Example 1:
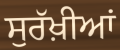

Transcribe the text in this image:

ਸੁਰੱਖ਼ੀਆਂ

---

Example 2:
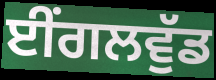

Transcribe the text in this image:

ਈਂਗਲਵੁੱਡ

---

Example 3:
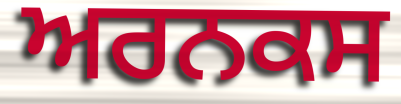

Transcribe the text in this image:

ਅਰਨਕਸ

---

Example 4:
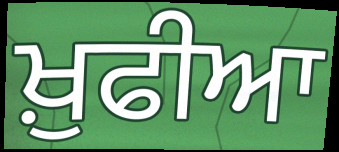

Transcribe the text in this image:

ਖ਼ੁਫੀਆ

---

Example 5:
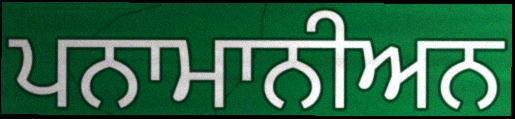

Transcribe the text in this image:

ਪਨਾਮਾਨੀਅਨ